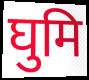
घुमि